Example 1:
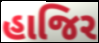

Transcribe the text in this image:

હાજિર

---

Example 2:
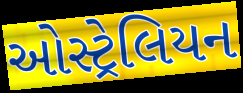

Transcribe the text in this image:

ઓસ્ટ્રેલિયન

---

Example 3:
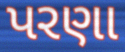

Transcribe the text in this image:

પરણા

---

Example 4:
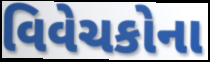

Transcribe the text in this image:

વિવેચકોના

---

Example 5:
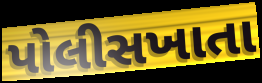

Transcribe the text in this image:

પોલીસખાતા